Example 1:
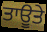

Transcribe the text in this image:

ਤਾਊਤੇ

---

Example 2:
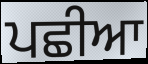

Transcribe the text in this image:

ਪਛੀਆ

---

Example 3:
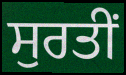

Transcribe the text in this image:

ਸੁਰਤੀਂ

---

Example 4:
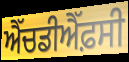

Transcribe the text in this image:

ਐੱਚਡੀਐੱਫ਼ਸੀ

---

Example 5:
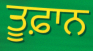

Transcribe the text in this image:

ਤੂਫ਼ਾਨ